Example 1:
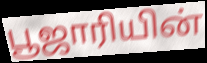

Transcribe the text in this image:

பூஜாரியின்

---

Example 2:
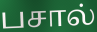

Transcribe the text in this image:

பசால்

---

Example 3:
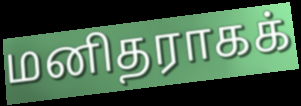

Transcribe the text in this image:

மனிதராகக்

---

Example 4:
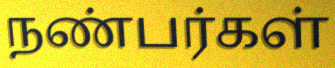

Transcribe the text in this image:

நண்பர்கள்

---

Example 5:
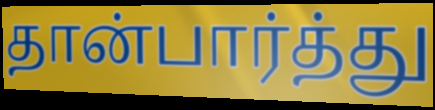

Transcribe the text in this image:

தான்பார்த்து